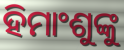
ହିମାଂଶୁଙ୍କୁ